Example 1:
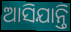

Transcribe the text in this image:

ଆସିଯାନ୍ତି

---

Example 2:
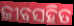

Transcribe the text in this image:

ଜୀବସହିତ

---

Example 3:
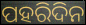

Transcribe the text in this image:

ପହରିଦିନ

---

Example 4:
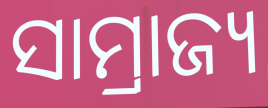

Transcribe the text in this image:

ସାମ୍ରାଜ୍ୟ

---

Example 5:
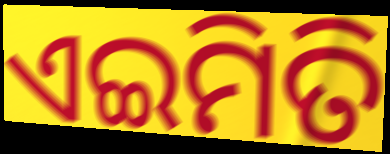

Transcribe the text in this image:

ଏଇମିତି